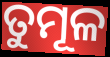
ତୁମୂଳ